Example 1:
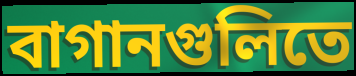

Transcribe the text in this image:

বাগানগুলিতে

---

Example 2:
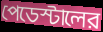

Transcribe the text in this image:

পেডেস্টালের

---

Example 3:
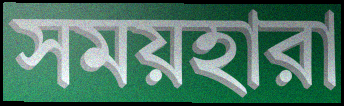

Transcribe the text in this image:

সময়হারা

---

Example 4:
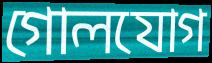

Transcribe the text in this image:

গোলযোগ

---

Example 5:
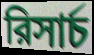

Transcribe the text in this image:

রিসার্চ